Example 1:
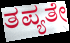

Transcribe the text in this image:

ತಪ್ಯತೇ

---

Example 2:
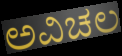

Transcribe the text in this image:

ಅವಿಚಲ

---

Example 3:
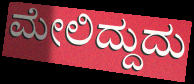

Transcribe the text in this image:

ಮೇಲಿದ್ದುದು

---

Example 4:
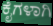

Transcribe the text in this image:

ಕೈಗಳಾಗಿ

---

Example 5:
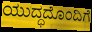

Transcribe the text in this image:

ಯುದ್ಧದೊಂದಿಗೆ